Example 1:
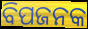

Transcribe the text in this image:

ବିପଜନକ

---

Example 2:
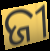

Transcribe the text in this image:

ଜୀ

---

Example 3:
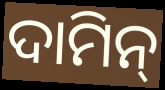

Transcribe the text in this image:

ଦାମିନ୍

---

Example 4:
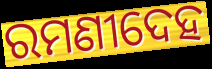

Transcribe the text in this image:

ରମଣୀଦେହ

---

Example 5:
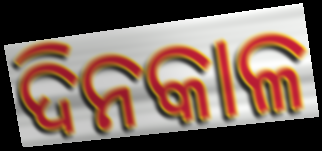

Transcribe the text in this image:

ଦିନକାଳ